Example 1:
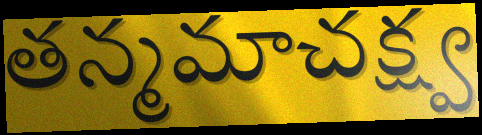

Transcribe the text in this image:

తన్మమాచక్ష్వ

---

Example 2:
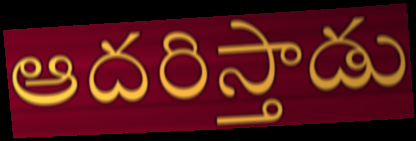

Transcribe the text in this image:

ఆదరిస్తాడు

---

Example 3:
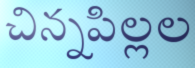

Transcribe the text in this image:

చిన్నపిల్లల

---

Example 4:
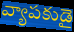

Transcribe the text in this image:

వ్యాపకుడై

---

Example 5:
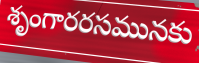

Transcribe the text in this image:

శృంగారరసమునకు